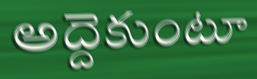
అద్దెకుంటూ